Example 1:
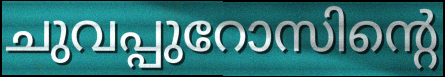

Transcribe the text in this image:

ചുവപ്പുറോസിന്റെ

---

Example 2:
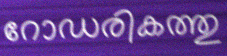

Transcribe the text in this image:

റോഡരികത്തു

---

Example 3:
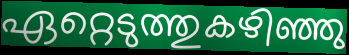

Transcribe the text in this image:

ഏറ്റെടുത്തുകഴിഞ്ഞു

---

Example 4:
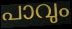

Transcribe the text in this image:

പാവും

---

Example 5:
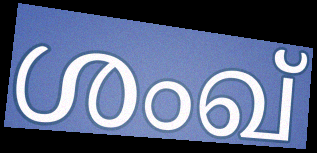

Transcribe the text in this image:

ശംഖ്